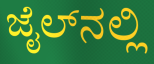
ಜೈಲ್‌ನಲ್ಲಿ